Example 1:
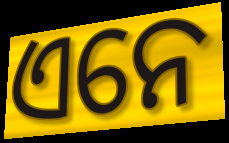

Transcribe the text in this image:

ଏନେ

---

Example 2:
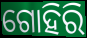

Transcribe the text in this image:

ଗୋହିରି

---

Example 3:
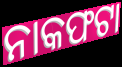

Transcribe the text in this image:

ନାକଫଟା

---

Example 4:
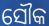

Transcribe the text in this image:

ସୌକ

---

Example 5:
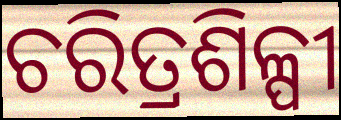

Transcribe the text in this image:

ଚରିତ୍ରଶିଳ୍ପୀ